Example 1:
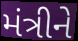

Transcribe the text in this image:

મંત્રીને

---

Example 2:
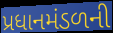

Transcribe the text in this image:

પ્રધાનમંડળની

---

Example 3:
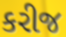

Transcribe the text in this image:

કરીજ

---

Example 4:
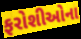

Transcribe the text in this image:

ફરોશીઓના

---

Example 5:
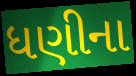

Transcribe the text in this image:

ધણીના